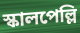
স্কালপেল্লি